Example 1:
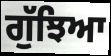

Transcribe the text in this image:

ਗੁੱਝਿਆ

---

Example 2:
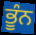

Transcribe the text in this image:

ਭੂੰਨ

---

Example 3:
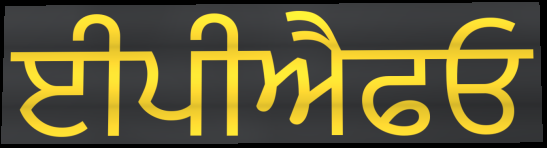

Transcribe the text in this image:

ਈਪੀਐਫਓ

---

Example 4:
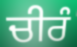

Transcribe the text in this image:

ਚੀਰੰ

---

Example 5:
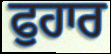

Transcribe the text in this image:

ਫੁਹਾਰ